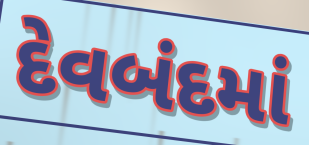
દેવબંદમાં